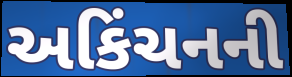
અકિંચનની